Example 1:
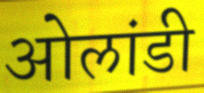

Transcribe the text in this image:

ओलांडी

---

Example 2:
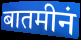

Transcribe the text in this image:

बातमीनं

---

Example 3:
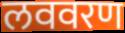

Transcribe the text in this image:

लववरण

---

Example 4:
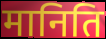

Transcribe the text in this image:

मानिति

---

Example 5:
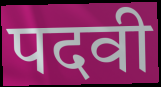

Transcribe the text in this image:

पदवी